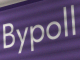
Bypoll